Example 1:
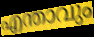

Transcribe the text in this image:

എന്താവും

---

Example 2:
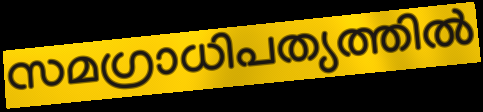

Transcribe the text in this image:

സമഗ്രാധിപത്യത്തിൽ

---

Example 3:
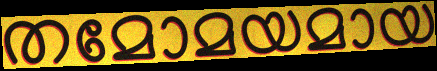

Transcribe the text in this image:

തമോമയമായ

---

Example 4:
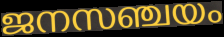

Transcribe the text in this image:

ജനസഞ്ചയം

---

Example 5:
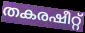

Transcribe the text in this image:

തകരഷീറ്റ്